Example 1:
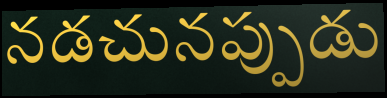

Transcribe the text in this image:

నడచునప్పుడు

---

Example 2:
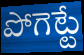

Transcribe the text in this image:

పోగెట్టే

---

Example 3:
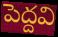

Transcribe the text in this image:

పెద్దవి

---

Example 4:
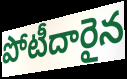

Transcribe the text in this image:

పోటీదారైన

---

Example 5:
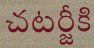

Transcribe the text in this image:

చటర్జీకి